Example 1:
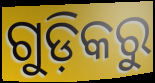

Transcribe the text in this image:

ଗୁଡ଼ିକରୁ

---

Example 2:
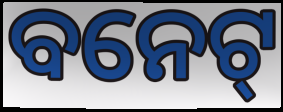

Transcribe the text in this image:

ବନେଟ୍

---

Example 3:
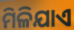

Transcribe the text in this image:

ମିଳିଯାଏ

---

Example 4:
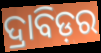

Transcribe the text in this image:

ଦ୍ରାବିଡ଼ର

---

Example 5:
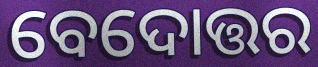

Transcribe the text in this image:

ବେଦୋତ୍ତର